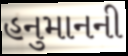
હનુમાનની